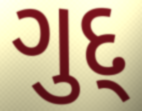
ગુદ્